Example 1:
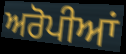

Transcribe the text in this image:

ਅਰੋਪੀਆਂ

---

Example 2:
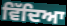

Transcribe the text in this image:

ਵਿੱਦਿਆ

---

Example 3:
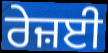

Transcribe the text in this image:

ਰੇਜ਼ਈ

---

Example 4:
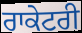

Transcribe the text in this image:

ਰਾਕੇਟਰੀ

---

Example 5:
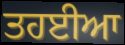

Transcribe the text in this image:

ਤਹਈਆ